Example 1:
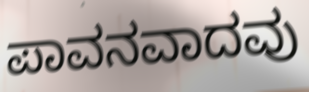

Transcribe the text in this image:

ಪಾವನವಾದವು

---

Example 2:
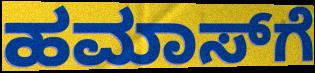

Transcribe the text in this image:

ಹಮಾಸ್‌ಗೆ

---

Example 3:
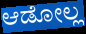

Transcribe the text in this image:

ಆಡೋಲ್ಲ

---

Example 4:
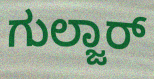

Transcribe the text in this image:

ಗುಲ್ಜಾರ್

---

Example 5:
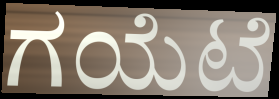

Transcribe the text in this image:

ಗಯೆಟೆ